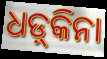
ଧଡ଼୍‍କିନା